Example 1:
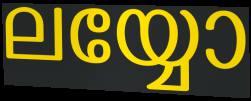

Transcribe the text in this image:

ലയ്യോ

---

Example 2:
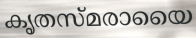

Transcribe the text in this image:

കൃതസ്മരായൈ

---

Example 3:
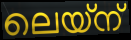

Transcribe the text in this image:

ലെയ്ന്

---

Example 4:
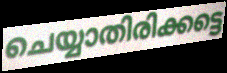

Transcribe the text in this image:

ചെയ്യാതിരിക്കട്ടെ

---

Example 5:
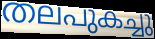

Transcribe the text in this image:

തലപുകച്ചു